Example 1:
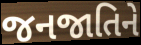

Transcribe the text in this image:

જનજાતિને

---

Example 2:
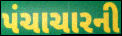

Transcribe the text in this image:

પંચાચારની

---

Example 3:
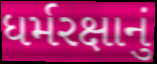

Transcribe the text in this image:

ધર્મરક્ષાનું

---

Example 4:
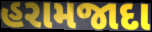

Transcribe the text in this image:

હરામજાદા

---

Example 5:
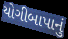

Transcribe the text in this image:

યોગીબાપાનું